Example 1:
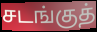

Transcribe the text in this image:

சடங்குத்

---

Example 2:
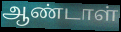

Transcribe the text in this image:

ஆண்டாள்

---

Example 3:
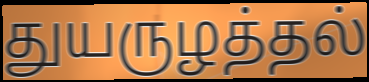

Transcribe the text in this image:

துயருழத்தல்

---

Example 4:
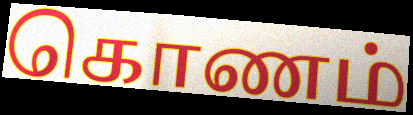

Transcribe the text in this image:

கொணம்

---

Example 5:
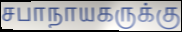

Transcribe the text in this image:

சபாநாயகருக்கு